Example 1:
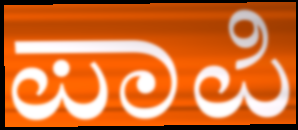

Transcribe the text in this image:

ಪಾಪಿ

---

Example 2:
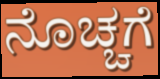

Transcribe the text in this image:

ನೊಚ್ಚಗೆ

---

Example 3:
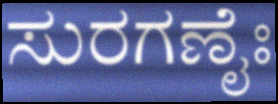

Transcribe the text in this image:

ಸುರಗಣೈಃ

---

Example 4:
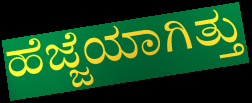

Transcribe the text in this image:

ಹೆಜ್ಜೆಯಾಗಿತ್ತು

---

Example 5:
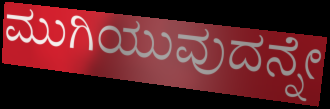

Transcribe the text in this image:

ಮುಗಿಯುವುದನ್ನೇ